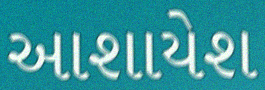
આશાયેશ